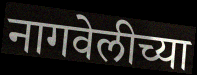
नागवेलीच्या